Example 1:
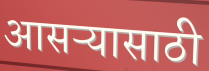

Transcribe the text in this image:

आसऱ्यासाठी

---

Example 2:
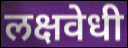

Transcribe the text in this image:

लक्षवेधी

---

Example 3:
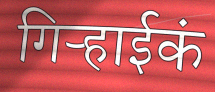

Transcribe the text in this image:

गिऱ्हाईकं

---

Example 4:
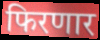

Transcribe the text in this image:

फिरणार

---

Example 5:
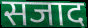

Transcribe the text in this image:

सजाद